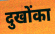
दुखोंका